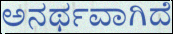
ಅನರ್ಥವಾಗಿದೆ